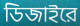
ডিজাইরে